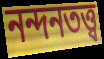
নন্দনতত্ত্ব